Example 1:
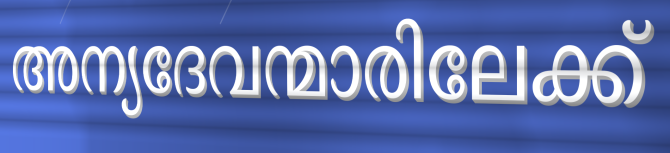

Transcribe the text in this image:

അന്യദേവന്മാരിലേക്ക്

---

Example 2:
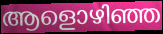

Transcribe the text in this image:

ആളൊഴിഞ്ഞ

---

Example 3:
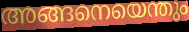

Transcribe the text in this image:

അങ്ങനെയെന്തും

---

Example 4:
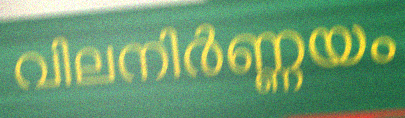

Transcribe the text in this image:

വിലനിർണ്ണയം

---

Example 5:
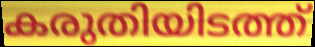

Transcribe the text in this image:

കരുതിയിടത്ത്